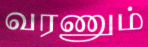
வரணும்